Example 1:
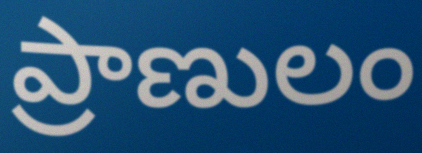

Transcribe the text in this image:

ప్రాణులం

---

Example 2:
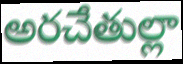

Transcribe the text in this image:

అరచేతుల్లా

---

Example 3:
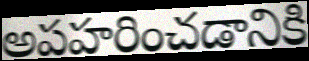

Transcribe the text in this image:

అపహరించడానికి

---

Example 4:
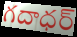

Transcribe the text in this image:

గదాధర్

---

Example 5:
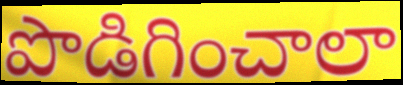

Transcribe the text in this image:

పొడిగించాలా